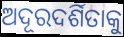
ଅଦୂରଦର୍ଶିତାକୁ